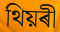
থিয়ৰী